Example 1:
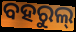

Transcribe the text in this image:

ବହରୁଲ୍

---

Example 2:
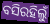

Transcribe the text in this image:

ବସିରହିଲୁଁ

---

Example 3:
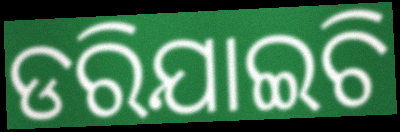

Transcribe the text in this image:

ଡରିଯାଇଚି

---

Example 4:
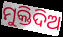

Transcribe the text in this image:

ମୁକ୍ତିଦିଅ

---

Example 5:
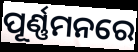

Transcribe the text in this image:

ପୂର୍ଣ୍ଣମନରେ